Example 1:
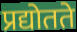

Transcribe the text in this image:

प्रद्योतते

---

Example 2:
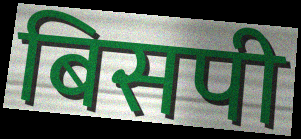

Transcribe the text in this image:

बिसपी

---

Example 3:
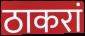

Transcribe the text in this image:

ठाकरां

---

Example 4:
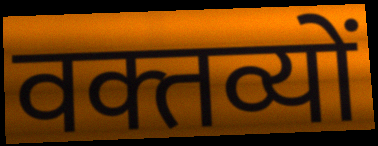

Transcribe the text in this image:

वक्‍तव्‍यों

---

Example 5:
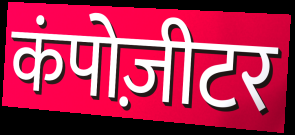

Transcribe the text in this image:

कंपोज़ीटर